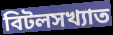
বিটলসখ্যাত